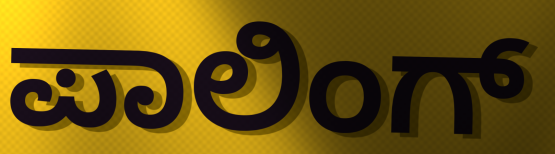
ಪಾಲಿಂಗ್